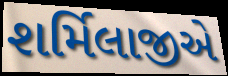
શર્મિલાજીએ